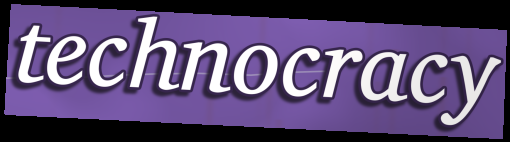
technocracy